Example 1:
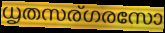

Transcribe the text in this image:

ധൃതസര്ഗരസോ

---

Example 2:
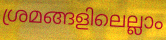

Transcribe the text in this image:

ശ്രമങ്ങളിലെല്ലാം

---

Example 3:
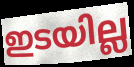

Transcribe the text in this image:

ഇടയില്ല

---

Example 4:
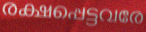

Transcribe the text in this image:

രക്ഷപ്പെട്ടവരേ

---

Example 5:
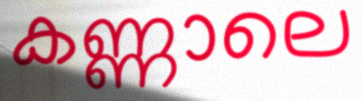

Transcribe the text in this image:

കണ്ണാലെ